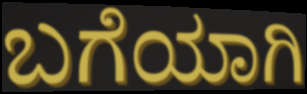
ಬಗೆಯಾಗಿ